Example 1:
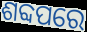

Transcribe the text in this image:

ଶବ୍ଦପରେ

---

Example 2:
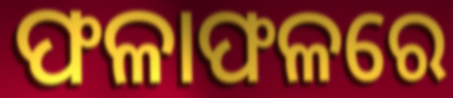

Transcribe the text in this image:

ଫଳାଫଳରେ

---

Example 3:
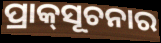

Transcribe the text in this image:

ପ୍ରାକ୍‌ସୂଚନାର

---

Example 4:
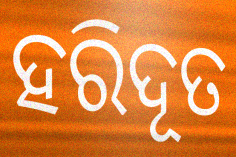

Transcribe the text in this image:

ହରିଦୂତ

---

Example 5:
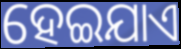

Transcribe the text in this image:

ହେଇଯାଏ